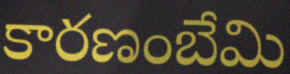
కారణంబేమి